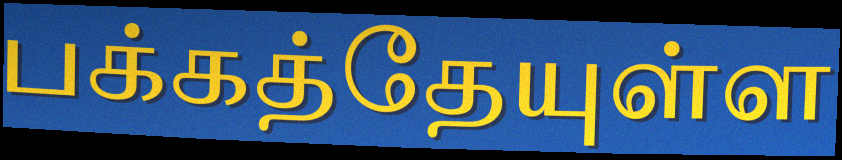
பக்கத்தேயுள்ள